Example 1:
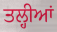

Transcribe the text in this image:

ਤਲ੍ਹੀਆਂ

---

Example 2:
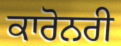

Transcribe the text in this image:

ਕਾਰੋਨਰੀ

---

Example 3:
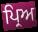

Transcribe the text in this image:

ਪ੍ਰਿਅ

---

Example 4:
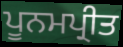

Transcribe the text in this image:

ਪੂਨਮਪ੍ਰੀਤ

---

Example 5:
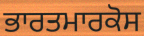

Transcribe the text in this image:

ਭਾਰਤਮਾਰਕੋਸ